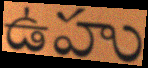
ఉహు